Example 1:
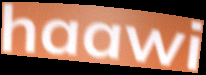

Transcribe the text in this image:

haawi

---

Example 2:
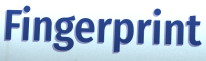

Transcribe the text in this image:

Fingerprint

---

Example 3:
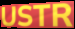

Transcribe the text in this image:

USTR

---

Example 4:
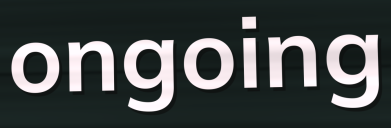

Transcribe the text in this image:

ongoing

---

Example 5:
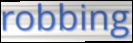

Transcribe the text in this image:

robbing